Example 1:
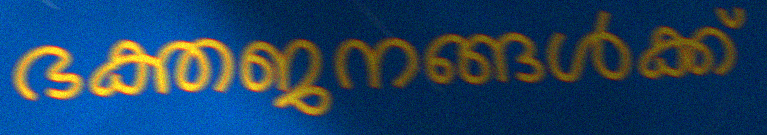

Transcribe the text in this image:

ഭക്തജനങ്ങൾക്ക്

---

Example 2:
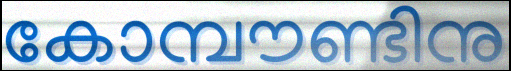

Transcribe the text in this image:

കോമ്പൗണ്ടിനു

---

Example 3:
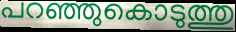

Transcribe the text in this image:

പറഞ്ഞുകൊടുത്തു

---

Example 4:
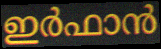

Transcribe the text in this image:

ഇർഫാൻ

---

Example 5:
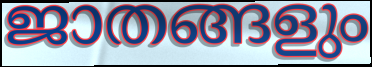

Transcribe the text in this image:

ജാതങ്ങളും